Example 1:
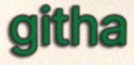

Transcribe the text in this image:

githa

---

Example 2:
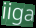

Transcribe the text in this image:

iiga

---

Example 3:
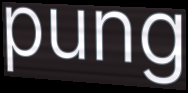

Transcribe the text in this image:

pung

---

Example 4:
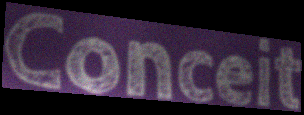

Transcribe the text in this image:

Conceit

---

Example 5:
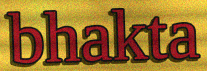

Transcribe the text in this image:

bhakta